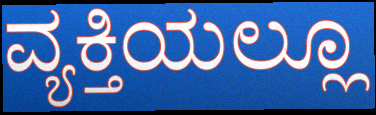
ವ್ಯಕ್ತಿಯಲ್ಲೂ